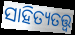
ସାହିତ୍ୟତତ୍ତ୍ୱ